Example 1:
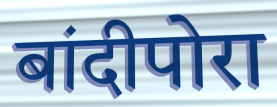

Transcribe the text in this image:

बांदीपोरा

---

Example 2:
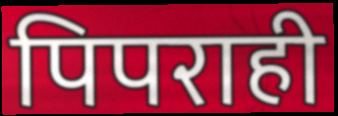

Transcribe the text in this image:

पिपराही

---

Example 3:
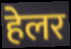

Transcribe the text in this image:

हेलर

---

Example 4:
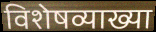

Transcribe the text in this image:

विशेषव्याख्या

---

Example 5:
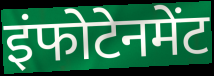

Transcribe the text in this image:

इंफोटेनमेंट